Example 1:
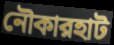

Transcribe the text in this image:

নৌকারহাট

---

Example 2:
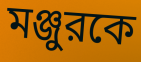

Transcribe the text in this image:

মঞ্জুরকে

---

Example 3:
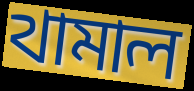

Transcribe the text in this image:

থামাল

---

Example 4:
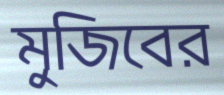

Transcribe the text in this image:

মুজিবের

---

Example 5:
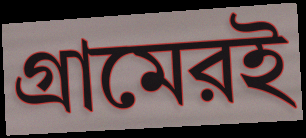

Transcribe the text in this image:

গ্রামেরই